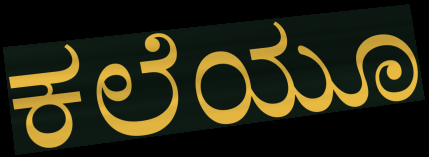
ಕಲೆಯೂ